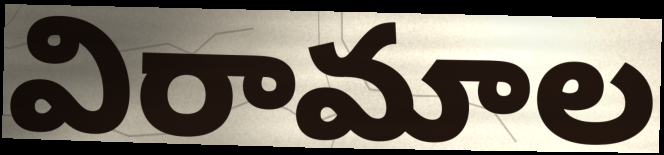
విరామాల